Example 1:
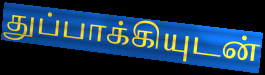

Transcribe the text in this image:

துப்பாக்கியுடன்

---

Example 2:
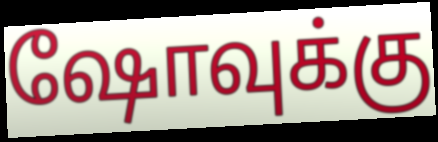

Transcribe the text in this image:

ஷோவுக்கு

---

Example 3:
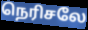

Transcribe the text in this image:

நெரிசலே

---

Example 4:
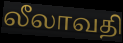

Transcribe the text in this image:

லீலாவதி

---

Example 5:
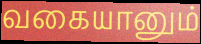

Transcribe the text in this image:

வகையானும்